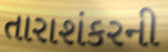
તારાશંકરની